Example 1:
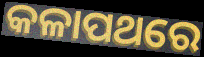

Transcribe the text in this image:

କଳାପଥରେ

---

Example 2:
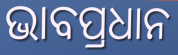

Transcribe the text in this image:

ଭାବପ୍ରଧାନ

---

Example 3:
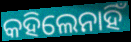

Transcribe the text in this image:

କହିଲେନାହିଁ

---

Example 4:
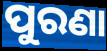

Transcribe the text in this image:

ପୁରଣା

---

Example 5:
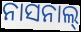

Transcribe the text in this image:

ନାସନାଲ୍